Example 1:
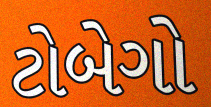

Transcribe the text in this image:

ટોબેગો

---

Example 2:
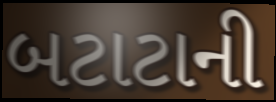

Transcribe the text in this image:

બટાટાની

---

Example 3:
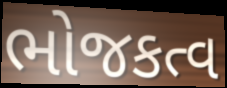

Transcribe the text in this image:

ભોજકત્વ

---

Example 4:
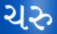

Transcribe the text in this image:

ચરુ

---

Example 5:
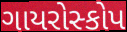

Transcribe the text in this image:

ગાયરોસ્કોપ